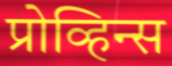
प्रोव्हिन्स